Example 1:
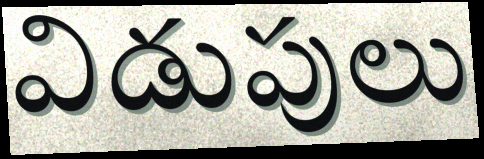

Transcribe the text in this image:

విడుపులు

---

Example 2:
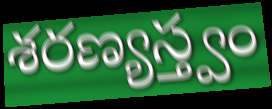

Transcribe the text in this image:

శరణ్యస్త్వం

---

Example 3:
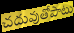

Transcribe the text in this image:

చదువుతోపాటు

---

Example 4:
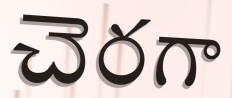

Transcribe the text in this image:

చెరగా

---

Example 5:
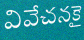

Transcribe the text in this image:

వివేచనకై